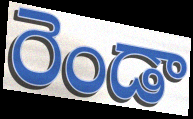
రెండా